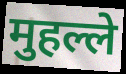
मुहल्ले